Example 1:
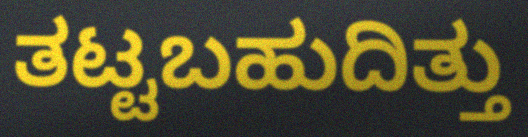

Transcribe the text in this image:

ತಟ್ಟಬಹುದಿತ್ತು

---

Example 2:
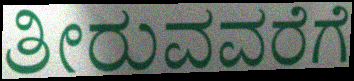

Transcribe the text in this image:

ತೀರುವವರೆಗೆ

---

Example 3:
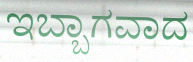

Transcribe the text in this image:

ಇಬ್ಬಾಗವಾದ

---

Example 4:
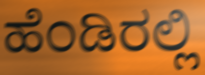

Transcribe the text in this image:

ಹೆಂಡಿರಲ್ಲಿ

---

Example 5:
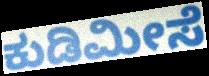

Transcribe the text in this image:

ಕುಡಿಮೀಸೆ